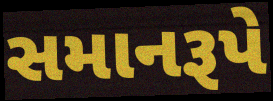
સમાનરૂપે